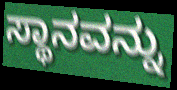
ಸ್ಥಾನವನ್ನು